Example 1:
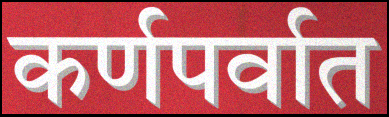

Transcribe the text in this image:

कर्णपर्वात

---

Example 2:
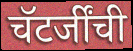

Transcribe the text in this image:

चॅटर्जींची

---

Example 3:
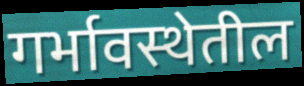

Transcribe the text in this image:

गर्भावस्थेतील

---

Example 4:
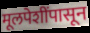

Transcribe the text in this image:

मूलपेशींपासून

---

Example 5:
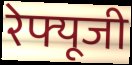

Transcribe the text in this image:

रेफ्यूजी